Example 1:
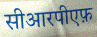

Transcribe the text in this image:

सीआरपीएफ़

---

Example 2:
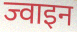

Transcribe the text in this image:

ज्‍वाइन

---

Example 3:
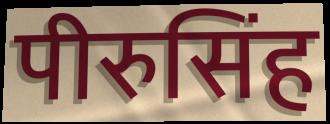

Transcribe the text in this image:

पीरुसिंह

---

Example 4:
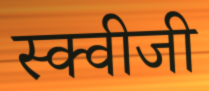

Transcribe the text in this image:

स्क्वीजी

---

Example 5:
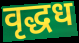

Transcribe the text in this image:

वृद्धध